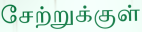
சேற்றுக்குள்